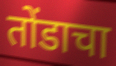
तोंडाचा